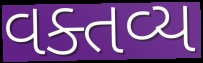
વક્તવ્ય